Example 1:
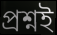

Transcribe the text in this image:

প্রশ্নই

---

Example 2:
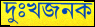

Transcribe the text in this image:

দুঃখজনক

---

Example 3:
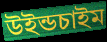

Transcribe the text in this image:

উইন্ডচাইম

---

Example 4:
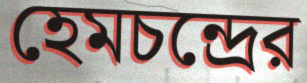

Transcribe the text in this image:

হেমচন্দ্রের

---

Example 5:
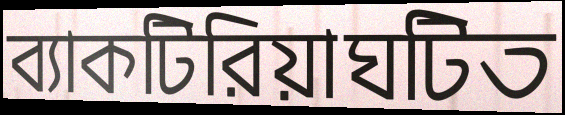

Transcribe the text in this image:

ব্যাকটিরিয়াঘটিত